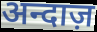
अन्दाज़